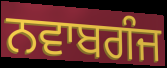
ਨਵਾਬਗੰਜ